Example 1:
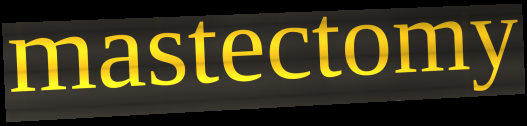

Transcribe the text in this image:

mastectomy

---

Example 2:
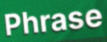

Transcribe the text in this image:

Phrase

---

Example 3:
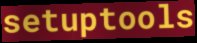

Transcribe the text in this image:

setuptools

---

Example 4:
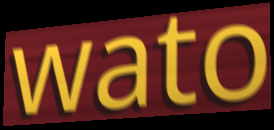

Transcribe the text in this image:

wato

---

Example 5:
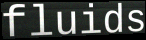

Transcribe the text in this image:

fluids